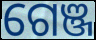
ଗେଞ୍ଜ